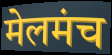
मेलमंच